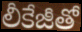
లీకేజీతో